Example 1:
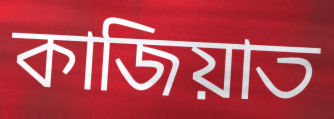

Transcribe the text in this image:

কাজিয়াত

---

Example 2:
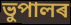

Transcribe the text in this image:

ভুপালৰ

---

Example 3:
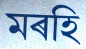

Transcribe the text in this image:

মৰহি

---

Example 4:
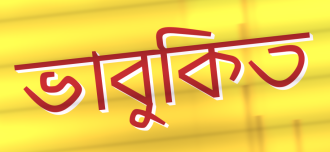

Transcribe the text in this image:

ভাবুকিত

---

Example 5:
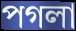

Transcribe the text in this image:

পগলা